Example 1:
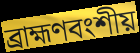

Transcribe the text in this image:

ব্রাহ্মণবংশীয়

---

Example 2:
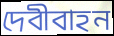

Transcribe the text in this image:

দেবীবাহন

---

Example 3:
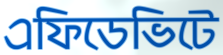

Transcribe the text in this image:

এফিডেভিটে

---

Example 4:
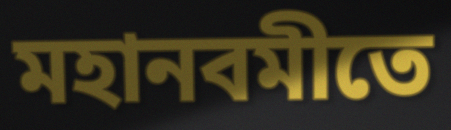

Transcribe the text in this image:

মহানবমীতে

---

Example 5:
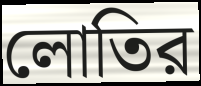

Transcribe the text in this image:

লোতির